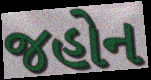
જહોન